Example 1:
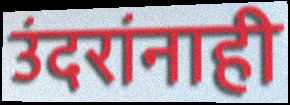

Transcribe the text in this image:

उंदरांनाही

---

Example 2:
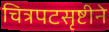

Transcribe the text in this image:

चित्रपटसृष्टीने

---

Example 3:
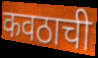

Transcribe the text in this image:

कवठाची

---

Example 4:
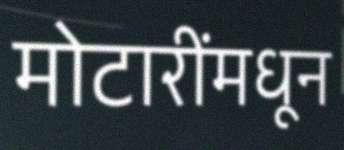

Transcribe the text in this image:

मोटारींमधून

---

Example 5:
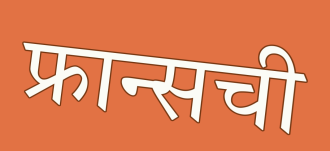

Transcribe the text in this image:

फ्रान्सची